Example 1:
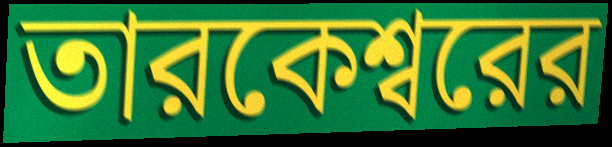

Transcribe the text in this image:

তারকেশ্বরের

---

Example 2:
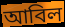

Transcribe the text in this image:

আবিল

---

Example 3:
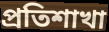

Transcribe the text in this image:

প্রতিশাখা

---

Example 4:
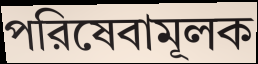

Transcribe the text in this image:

পরিষেবামূলক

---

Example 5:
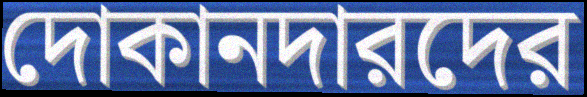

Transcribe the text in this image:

দোকানদারদের